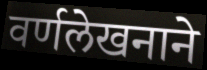
वर्णलेखनाने